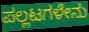
ಪಲ್ಲಟಗಳೇನು